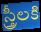
స్త్రీలకి